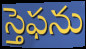
స్తెఫను